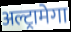
अल्ट्रामेगा